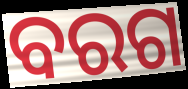
ବରଗ